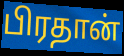
பிரதான்